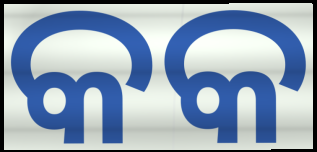
କକ